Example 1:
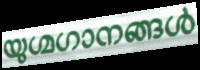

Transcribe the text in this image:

യുഗ്മഗാനങ്ങൾ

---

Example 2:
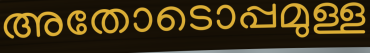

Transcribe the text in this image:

അതോടൊപ്പമുള്ള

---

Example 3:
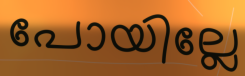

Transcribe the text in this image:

പോയില്ലേ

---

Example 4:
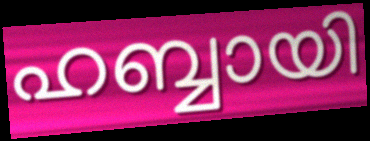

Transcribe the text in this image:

ഹബ്ബായി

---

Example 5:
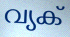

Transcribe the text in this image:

വ്യക്